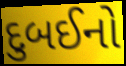
દુબઈનો